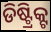
ଡିଷ୍ଟ୍ରିକ୍ଟ